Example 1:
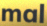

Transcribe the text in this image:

mal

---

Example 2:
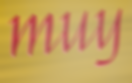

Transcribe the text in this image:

muy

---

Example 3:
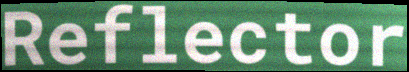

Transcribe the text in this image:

Reflector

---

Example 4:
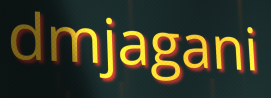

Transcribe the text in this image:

dmjagani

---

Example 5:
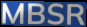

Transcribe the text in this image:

MBSR